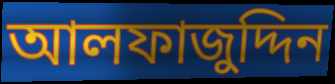
আলফাজুদ্দিন